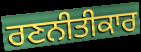
ਰਣਨੀਤੀਕਾਰ